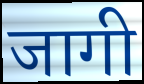
जागी